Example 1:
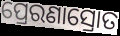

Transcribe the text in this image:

ପ୍ରେରଣାସ୍ରୋତ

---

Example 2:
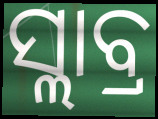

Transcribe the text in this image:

ସ୍ଲାବ୍ର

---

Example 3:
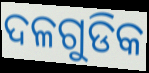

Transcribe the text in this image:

ଦଳଗୁଡିକ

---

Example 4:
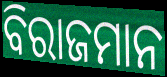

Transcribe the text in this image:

ବିରାଜମାନ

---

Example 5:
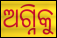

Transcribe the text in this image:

ଅଗ୍ନିକୁ